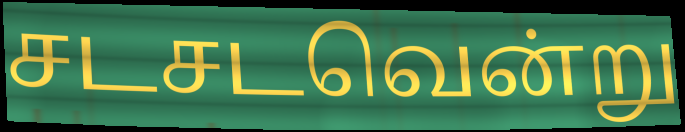
சடசடவென்று